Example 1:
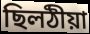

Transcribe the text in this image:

ছিলঠীয়া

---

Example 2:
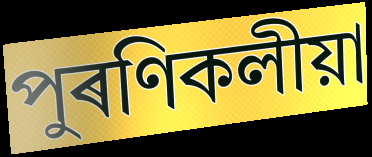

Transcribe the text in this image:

পুৰণিকলীয়া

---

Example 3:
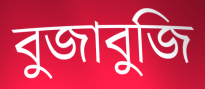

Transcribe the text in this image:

বুজাবুজি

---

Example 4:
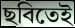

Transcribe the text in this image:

ছবিতেই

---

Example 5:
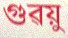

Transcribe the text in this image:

গুৱয়ু